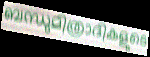
ബന്ധുമിത്രാദികളുടെ